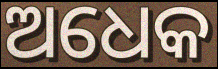
ଅଧେକ